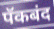
पॅकबंद